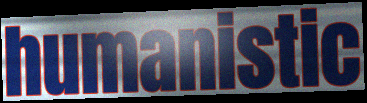
humanistic